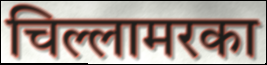
चिल्लामरका